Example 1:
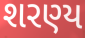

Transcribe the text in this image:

શરણ્ય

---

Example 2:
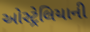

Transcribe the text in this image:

ઓસ્ટ્રેલિયાની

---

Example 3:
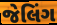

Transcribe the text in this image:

જેલિંગ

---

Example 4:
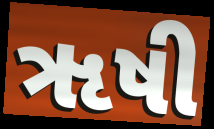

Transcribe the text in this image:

ૠષી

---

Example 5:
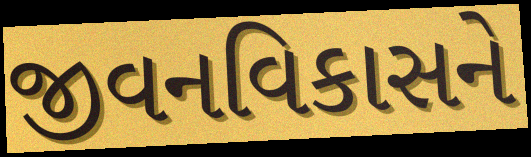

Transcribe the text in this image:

જીવનવિકાસને